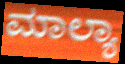
ಮಾಲ್ಯಾ